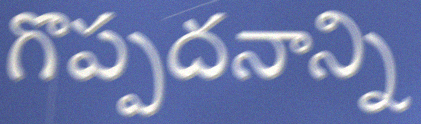
గొప్పదనాన్ని